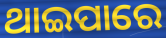
ଥାଇପାରେ